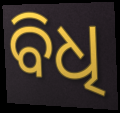
ବିଧି